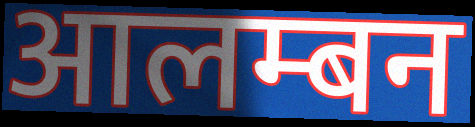
आलम्बन